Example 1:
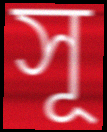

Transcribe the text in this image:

সূ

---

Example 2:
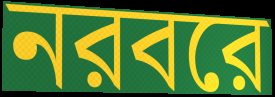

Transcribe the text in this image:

নরবরে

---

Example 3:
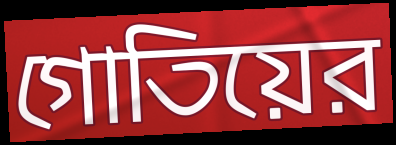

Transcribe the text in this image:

গোতিয়ের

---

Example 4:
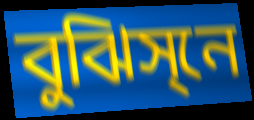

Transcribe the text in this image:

বুঝিস্‌নে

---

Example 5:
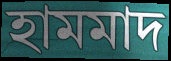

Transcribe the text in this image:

হামমাদ